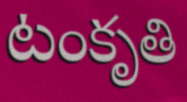
టంకృతి